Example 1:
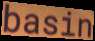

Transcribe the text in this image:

basin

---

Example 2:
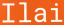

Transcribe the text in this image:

Ilai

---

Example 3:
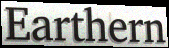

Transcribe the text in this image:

Earthern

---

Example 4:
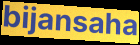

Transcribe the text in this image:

bijansaha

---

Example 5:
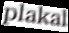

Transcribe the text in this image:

plakal